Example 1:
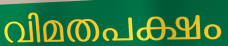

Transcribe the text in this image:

വിമതപക്ഷം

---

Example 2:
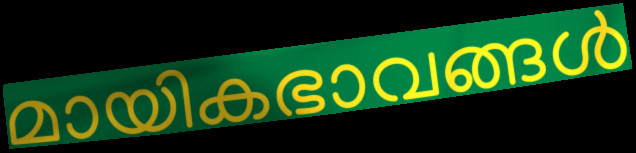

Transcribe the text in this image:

മായികഭാവങ്ങൾ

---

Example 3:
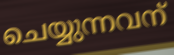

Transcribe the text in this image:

ചെയ്യുന്നവന്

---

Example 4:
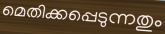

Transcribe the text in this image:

മെതിക്കപ്പെടുന്നതും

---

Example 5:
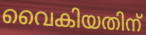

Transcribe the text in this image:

വൈകിയതിന്